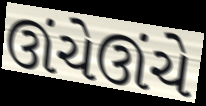
ઊંચેઊંચે